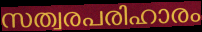
സത്വരപരിഹാരം